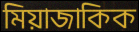
মিয়াজাকিক